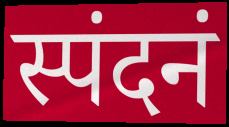
स्पंदनं